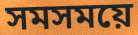
সমসময়ে